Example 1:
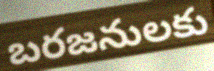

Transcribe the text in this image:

బరజనులకు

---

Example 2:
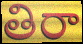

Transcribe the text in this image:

తిరా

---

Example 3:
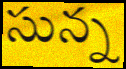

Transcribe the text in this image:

సున్న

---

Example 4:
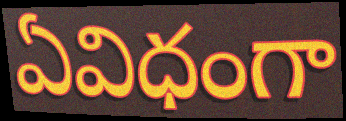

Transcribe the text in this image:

ఏవిధంగా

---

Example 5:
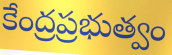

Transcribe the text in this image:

కేంద్రప్రభుత్వం